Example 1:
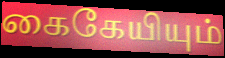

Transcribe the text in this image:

கைகேயியும்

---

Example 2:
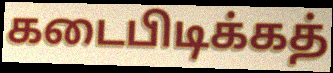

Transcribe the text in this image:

கடைபிடிக்கத்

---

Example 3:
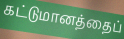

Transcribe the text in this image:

கட்டுமானத்தைப்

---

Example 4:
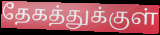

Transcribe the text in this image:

தேகத்துக்குள்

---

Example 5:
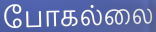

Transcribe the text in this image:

போகல்லை